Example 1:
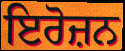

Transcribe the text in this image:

ਇਰੋਜ਼ਨ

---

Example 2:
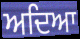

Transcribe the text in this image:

ਅਦਿਆ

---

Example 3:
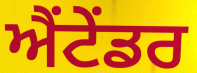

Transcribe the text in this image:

ਐਂਟੇਂਡਰ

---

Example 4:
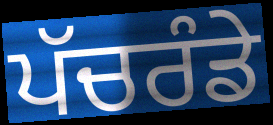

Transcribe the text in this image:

ਪੱਚਰੰਡੇ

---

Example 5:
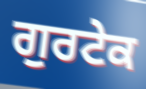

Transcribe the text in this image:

ਗੁਰਟੇਕ